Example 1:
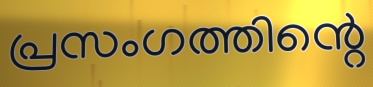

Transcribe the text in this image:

പ്രസംഗത്തിന്റെ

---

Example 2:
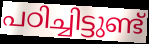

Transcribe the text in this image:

പഠിച്ചിട്ടുണ്ട്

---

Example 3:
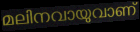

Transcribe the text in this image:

മലിനവായുവാണ്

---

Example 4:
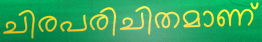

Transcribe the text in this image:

ചിരപരിചിതമാണ്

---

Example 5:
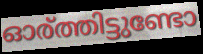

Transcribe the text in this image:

ഓര്ത്തിട്ടുണ്ടോ